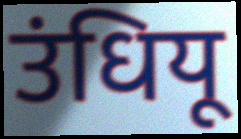
उंधियू